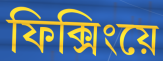
ফিক্সিংয়ে